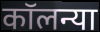
कॉलन्या